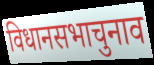
विधानसभाचुनाव